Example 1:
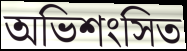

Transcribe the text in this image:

অভিশংসিত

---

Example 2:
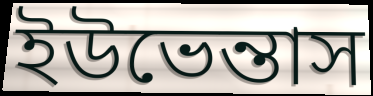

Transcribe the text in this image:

ইউভেন্তাস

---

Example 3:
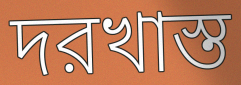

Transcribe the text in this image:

দরখাস্ত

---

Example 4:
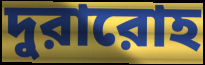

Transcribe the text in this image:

দুরারোহ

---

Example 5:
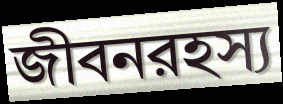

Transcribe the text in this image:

জীবনরহস্য